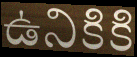
ఉనికికి